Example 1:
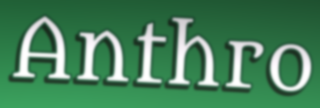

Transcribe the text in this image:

Anthro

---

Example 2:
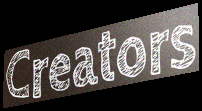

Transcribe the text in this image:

Creators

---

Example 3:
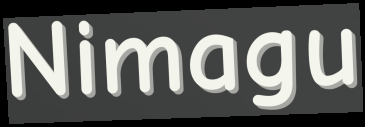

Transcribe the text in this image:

Nimagu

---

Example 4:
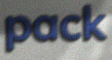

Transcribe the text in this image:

pack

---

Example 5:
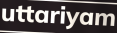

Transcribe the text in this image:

uttariyam